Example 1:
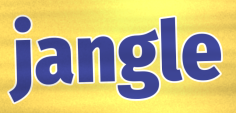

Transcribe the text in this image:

jangle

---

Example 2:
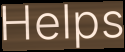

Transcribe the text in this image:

Helps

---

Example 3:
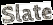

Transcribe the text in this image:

Slate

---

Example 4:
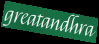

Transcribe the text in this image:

greatandhra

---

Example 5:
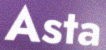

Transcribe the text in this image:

Asta